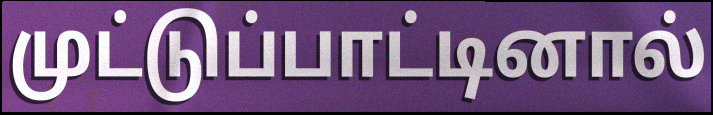
முட்டுப்பாட்டினால்